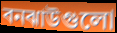
বনঝাউগুলো